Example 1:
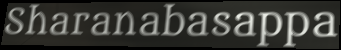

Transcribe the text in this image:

Sharanabasappa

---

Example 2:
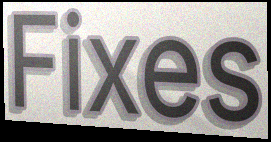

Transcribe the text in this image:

Fixes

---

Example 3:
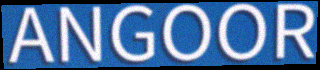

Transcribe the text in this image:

ANGOOR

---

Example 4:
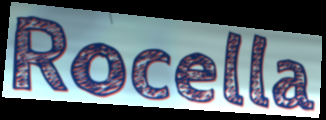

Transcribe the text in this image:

Rocella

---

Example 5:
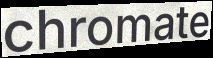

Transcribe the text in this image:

chromate